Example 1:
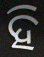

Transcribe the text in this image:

ହି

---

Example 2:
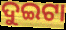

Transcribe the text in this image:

ଦୁଇଟା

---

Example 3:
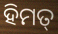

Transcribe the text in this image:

ହିମତ୍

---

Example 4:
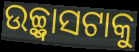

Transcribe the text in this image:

ଉଚ୍ଛ୍ୱାସଟାକୁ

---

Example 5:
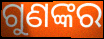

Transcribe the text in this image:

ଗୁଣଙ୍କର